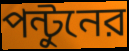
পন্টুনের